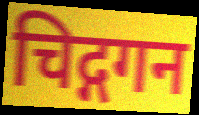
चिद्गगन